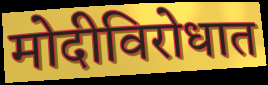
मोदीविरोधात